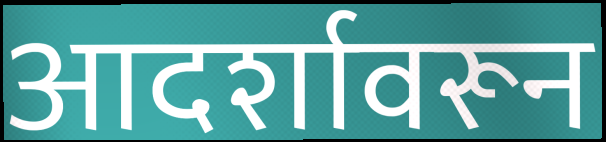
आदर्शावरून